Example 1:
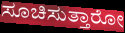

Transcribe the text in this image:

ಸೂಚಿಸುತ್ತಾರೋ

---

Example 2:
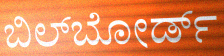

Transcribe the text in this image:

ಬಿಲ್‌ಬೋರ್ಡ್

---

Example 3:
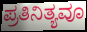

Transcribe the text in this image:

ಪ್ರತಿನಿತ್ಯವೂ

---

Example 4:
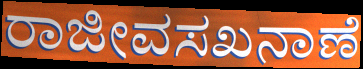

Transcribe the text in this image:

ರಾಜೀವಸಖನಾಣೆ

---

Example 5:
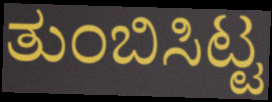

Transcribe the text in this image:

ತುಂಬಿಸಿಟ್ಟ